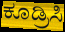
ಕೂಡ್ರಿಸಿ